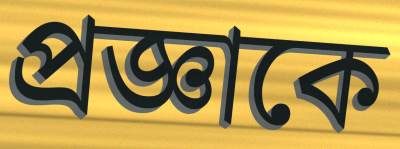
প্রজ্ঞাকে